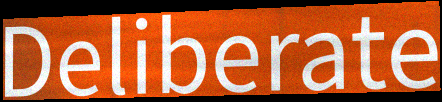
Deliberate